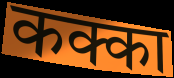
कक्का